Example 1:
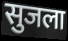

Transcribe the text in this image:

सुजला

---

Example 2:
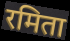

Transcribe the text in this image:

रमिता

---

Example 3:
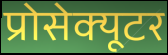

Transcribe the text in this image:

प्रोसेक्यूटर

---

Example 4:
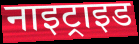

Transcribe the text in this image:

नाइट्राइड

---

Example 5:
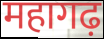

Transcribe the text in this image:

महागढ़